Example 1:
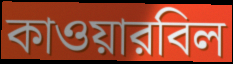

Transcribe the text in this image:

কাওয়ারবিল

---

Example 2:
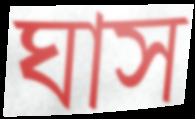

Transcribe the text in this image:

ঘাস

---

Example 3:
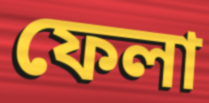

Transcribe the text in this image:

ফেলা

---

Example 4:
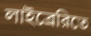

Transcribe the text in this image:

লাইব্রেরিতে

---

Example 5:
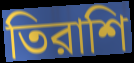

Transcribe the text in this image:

তিরাশি